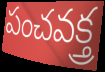
పంచవక్త్ర